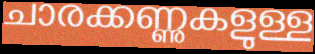
ചാരക്കണ്ണുകളുള്ള